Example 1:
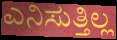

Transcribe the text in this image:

ಎನಿಸುತ್ತಿಲ್ಲ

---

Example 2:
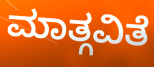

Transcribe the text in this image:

ಮಾತ್ಗವಿತೆ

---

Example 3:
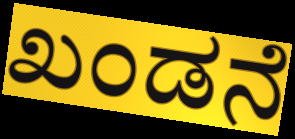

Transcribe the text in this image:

ಖಂಡನೆ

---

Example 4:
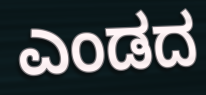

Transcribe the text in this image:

ಎಂಡದ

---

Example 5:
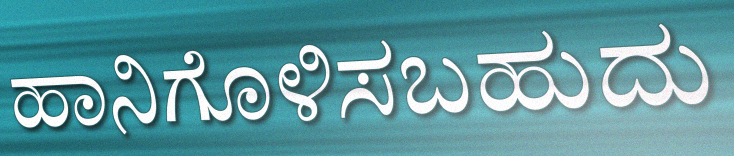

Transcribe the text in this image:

ಹಾನಿಗೊಳಿಸಬಹುದು